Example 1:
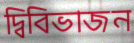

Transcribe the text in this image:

দ্বিবিভাজন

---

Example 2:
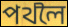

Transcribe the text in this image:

পথলৈ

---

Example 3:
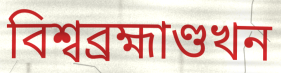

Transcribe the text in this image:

বিশ্বব্ৰহ্মাণ্ডখন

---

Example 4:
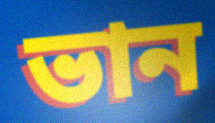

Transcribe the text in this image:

ভান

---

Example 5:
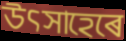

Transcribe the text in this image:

উৎসাহেৰে